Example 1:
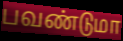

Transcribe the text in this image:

பவண்டுமா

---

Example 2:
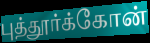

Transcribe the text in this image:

புத்தூர்க்கோன்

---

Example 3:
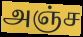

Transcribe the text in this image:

அஞ்ச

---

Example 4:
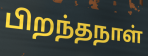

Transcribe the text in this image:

பிறந்தநாள்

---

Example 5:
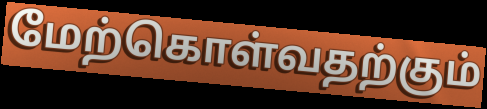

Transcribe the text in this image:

மேற்கொள்வதற்கும்